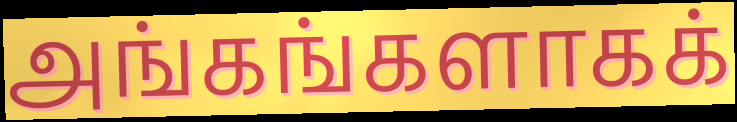
அங்கங்களாகக்